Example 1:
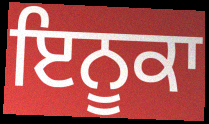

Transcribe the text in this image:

ਇਨੂਕਾ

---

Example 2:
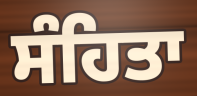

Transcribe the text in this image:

ਸੰਹਿਤਾ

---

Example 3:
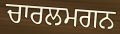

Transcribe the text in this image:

ਚਾਰਲਮਗਨ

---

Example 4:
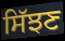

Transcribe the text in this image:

ਸਿੱਝਣ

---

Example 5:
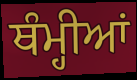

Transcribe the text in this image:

ਥੰਮ੍ਹੀਆਂ